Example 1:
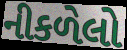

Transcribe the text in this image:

નીકળેલો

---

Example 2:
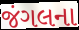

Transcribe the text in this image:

જંગલના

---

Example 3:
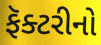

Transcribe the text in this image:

ફૅક્ટરીનો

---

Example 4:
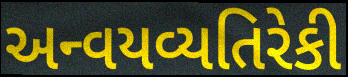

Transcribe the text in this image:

અન્વયવ્યતિરેકી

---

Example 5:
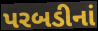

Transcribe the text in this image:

પરબડીનાં